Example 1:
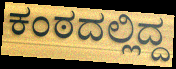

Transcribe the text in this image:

ಕಂಠದಲ್ಲಿದ್ದ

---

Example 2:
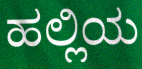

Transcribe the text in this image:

ಹಲ್ಲಿಯ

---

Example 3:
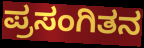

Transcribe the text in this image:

ಪ್ರಸಂಗಿತನ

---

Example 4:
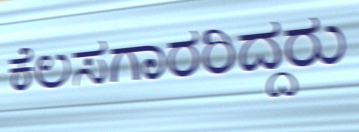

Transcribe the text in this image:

ಕೆಲಸಗಾರರಿದ್ದರು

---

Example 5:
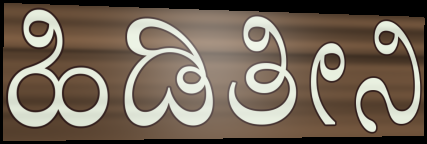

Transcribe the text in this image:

ಹಿಡಿತೀನಿ